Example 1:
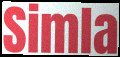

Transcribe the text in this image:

Simla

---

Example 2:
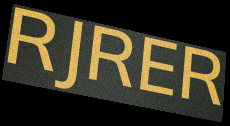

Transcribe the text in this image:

RJRER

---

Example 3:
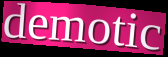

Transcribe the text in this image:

demotic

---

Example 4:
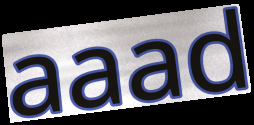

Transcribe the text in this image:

aaad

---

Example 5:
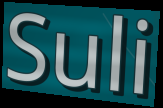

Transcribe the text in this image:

Suli